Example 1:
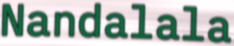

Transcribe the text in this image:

Nandalala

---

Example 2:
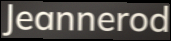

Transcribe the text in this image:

Jeannerod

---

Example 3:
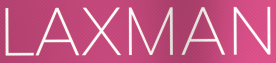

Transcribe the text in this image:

LAXMAN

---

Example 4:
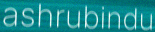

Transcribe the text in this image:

ashrubindu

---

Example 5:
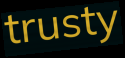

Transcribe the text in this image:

trusty